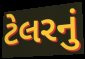
ટેલરનું